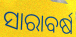
ସାରାବର୍ଷ